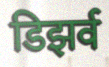
डिझर्व